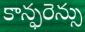
కాన్ఫరెన్సు